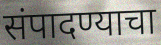
संपादण्याचा